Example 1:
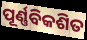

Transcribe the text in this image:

ପୂର୍ଣ୍ଣବିକଶିତ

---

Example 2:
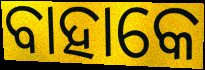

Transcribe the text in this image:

ବାହାକେ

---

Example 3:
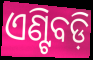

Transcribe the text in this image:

ଏଣ୍ଟିବଡ଼ି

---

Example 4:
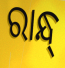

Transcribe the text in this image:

ରାନ୍ଧ୍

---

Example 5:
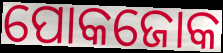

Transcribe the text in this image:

ପୋକଜୋକ